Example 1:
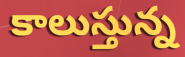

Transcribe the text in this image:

కాలుస్తున్న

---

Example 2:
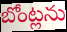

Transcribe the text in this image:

బోంట్లను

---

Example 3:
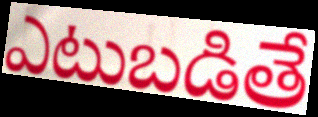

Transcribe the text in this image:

ఎటుబడితే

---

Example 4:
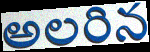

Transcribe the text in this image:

అలరిన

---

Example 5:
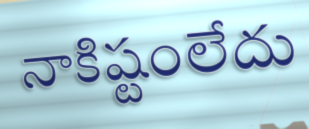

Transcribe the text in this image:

నాకిష్టంలేదు